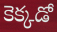
కెక్కడో